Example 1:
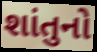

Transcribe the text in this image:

શાંતુનો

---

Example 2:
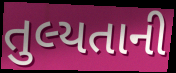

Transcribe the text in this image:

તુલ્યતાની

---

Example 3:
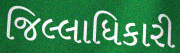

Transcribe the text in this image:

જિલ્લાધિકારી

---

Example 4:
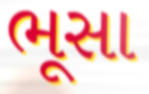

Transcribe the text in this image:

ભૂસા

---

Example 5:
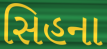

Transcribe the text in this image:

સિહના